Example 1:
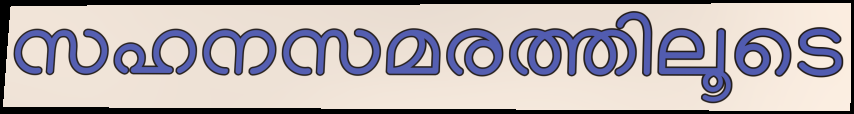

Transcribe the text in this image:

സഹനസമരത്തിലൂടെ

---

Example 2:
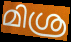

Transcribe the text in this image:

മിശ്ര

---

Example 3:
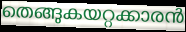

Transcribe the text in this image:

തെങ്ങുകയറ്റക്കാരൻ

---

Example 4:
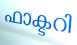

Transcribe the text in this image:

ഫാക്ടറി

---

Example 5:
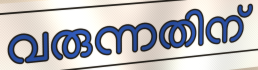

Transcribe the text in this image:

വരുന്നതിന്